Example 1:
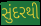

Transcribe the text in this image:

સુંદરથી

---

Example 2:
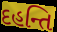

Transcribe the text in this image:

દહન્તિ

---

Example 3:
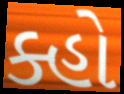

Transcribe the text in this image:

ક્હો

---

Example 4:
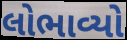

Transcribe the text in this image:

લોભાવ્યો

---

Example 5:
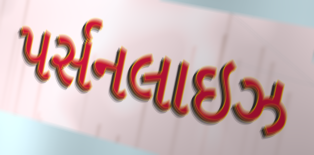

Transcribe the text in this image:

પર્સનલાઇઝ